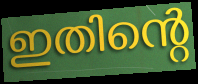
ഇതിന്റെ